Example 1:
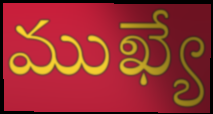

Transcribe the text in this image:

ముఖ్యే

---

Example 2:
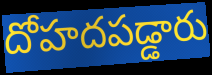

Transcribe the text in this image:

దోహదపడ్డారు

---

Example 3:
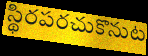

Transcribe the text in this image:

స్థిరపరచుకొనుట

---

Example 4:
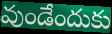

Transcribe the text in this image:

వుండేందుకు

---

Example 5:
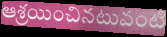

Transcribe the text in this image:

ఆశ్రయించినటువంటి